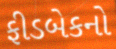
ફીડબેકનો